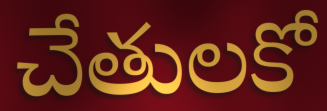
చేతులకో